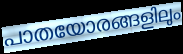
പാതയോരങ്ങളിലും